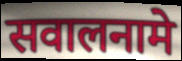
सवालनामे